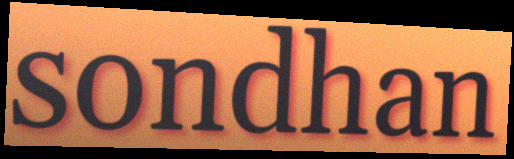
sondhan